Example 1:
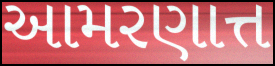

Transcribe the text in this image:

આમરણાત્ત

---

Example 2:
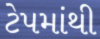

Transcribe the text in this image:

ટેપમાંથી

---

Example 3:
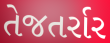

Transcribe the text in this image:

તેજતર્રાર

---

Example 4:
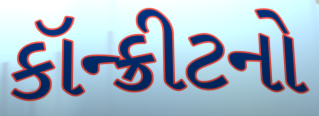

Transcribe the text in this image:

કૉન્ક્રીટનો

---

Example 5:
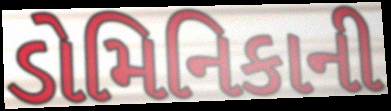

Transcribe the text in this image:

ડોમિનિકાની